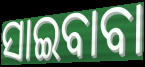
ସାଇବାବା